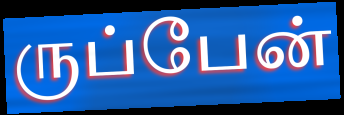
ருப்பேன்